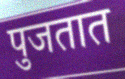
पुजतात